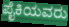
ಪೈಕಿಯವರು